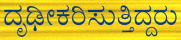
ದೃಢೀಕರಿಸುತ್ತಿದ್ದರು